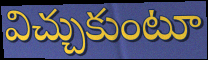
విచ్చుకుంటూ